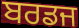
ਬਰਡਜ